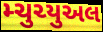
મ્ચુચ્યુઅલ